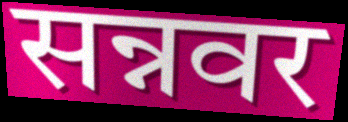
सन्नवर